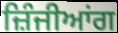
ਜ਼ਿੰਜੀਆਂਗ